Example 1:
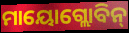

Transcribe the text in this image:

ମାୟୋଗ୍ଲୋବିନ୍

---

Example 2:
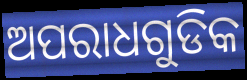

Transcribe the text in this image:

ଅପରାଧଗୁଡିକ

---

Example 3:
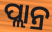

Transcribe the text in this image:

ପ୍ଲାନ୍ର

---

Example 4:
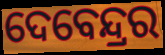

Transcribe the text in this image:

ଦେବେନ୍ଦ୍ରର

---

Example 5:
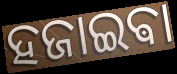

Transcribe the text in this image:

ହଜାଇଵା